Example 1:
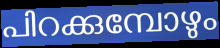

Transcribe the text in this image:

പിറക്കുമ്പോഴും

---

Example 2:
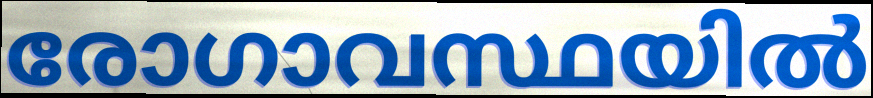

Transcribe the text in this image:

രോഗാവസ്ഥയിൽ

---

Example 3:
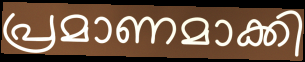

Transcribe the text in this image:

പ്രമാണമാക്കി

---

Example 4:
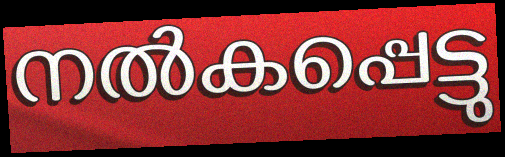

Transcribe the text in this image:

നൽകപ്പെട്ടു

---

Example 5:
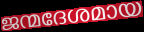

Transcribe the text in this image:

ജന്മദേശമായ